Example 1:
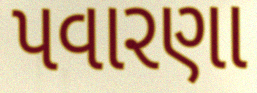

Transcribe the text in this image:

પવારણા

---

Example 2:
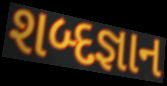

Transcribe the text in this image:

શબ્દજ્ઞાન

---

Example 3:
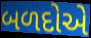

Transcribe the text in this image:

બળદોએ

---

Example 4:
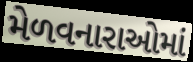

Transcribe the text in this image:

મેળવનારાઓમાં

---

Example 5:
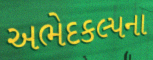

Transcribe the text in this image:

અભેદકલ્પના